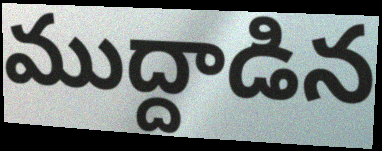
ముద్దాడిన